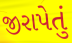
જીરાપેતું